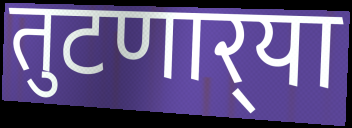
तुटणार्‍या